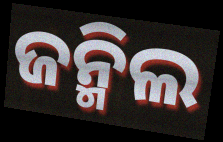
ଜନ୍ମିଲ